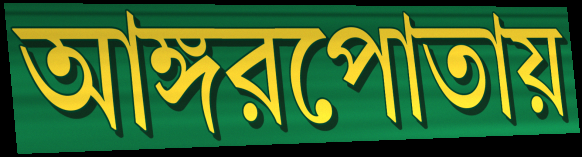
আঙ্গরপোতায়